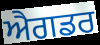
ਐਗਡਰ